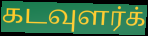
கடவுளர்க்